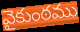
వైకుంఠము